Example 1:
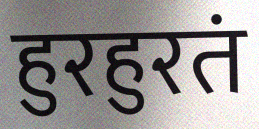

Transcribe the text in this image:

हुरहुरतं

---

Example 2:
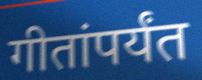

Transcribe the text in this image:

गीतांपर्यंत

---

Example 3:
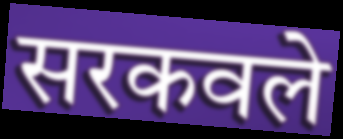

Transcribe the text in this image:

सरकवले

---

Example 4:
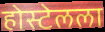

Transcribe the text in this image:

होस्टेलला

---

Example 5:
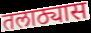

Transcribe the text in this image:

तलाठ्यास